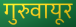
गुरुवायूर